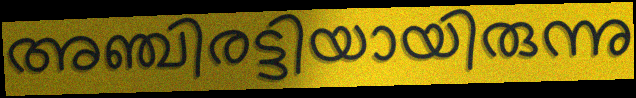
അഞ്ചിരട്ടിയായിരുന്നു